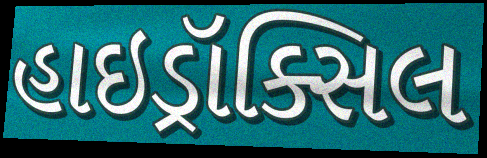
હાઇડ્રૉક્સિલ